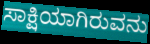
ಸಾಕ್ಷಿಯಾಗಿರುವನು